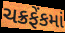
ચક્રફેંકમાં